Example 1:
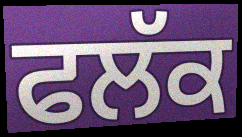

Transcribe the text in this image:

ਫਲੱਕ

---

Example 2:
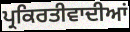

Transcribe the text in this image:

ਪ੍ਰਕਿਰਤੀਵਾਦੀਆਂ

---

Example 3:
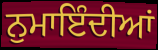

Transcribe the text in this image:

ਨੁਮਾਇੰਦੀਆਂ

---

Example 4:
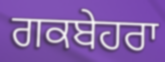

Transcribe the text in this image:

ਗਕਬੇਹਰਾ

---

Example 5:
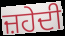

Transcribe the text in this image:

ਜ਼ਹੇਦੀ